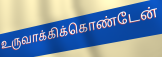
உருவாக்கிக்கொண்டேன்